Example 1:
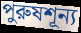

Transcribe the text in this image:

পুরুষশূন্য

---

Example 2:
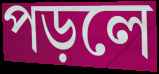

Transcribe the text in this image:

পড়লে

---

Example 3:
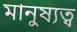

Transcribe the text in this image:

মানুষ্যত্ব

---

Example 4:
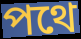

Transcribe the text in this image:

পথে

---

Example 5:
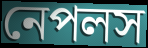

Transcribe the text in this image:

নেপলস